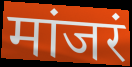
मांजरं